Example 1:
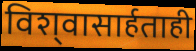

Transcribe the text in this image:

विश्वासार्हताही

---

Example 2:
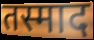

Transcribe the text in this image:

तस्माद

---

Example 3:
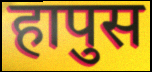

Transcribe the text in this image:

हापुस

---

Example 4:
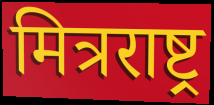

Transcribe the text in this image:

मित्रराष्ट्र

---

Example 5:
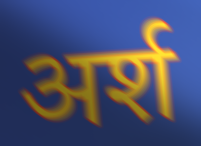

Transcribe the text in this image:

अर्श